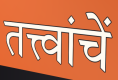
तत्त्वांचें